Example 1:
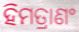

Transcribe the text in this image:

ହିମତ୍ରାଣଂ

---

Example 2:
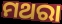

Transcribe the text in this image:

ମଥରା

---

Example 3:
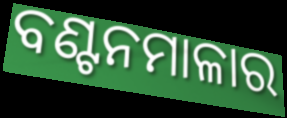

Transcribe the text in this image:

ବଣ୍ଟନମାଳାର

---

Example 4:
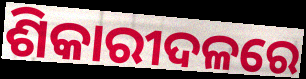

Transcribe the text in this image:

ଶିକାରୀଦଳରେ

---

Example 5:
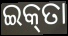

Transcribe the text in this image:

ଇକ୍‌ତା